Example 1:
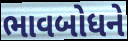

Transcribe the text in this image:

ભાવબોધને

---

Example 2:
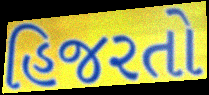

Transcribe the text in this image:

હિજરતો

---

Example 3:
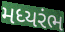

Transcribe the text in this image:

મધ્યરંભ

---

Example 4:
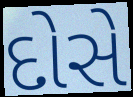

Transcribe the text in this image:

દોસે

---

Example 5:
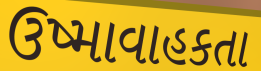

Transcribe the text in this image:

ઉષ્માવાહકતા